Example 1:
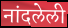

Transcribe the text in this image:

नांदलेली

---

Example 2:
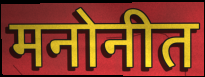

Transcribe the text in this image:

मनोनीत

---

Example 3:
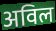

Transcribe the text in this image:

अविल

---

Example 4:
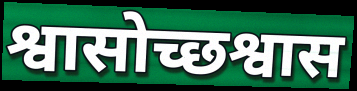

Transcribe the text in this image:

श्वासोच्छश्वास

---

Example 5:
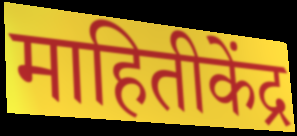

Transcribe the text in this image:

माहितीकेंद्र